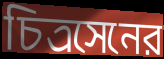
চিত্রসেনের